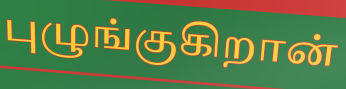
புழுங்குகிறான்